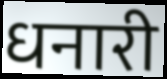
धनारी